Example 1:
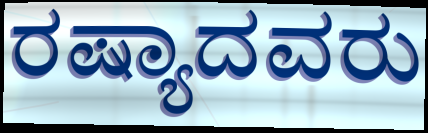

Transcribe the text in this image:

ರಷ್ಯಾದವರು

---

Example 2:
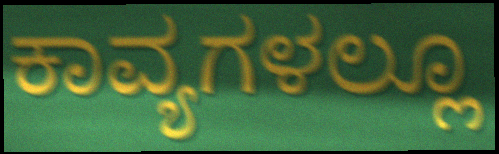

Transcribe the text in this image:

ಕಾವ್ಯಗಳಲ್ಲೂ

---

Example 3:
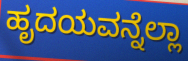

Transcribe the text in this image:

ಹೃದಯವನ್ನೆಲ್ಲಾ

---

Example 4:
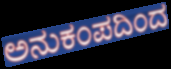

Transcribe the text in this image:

ಅನುಕಂಪದಿಂದ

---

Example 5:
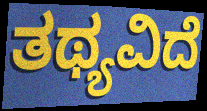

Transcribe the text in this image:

ತಥ್ಯವಿದೆ